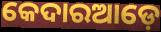
କେଦାରଆଡ଼େ